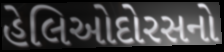
હેલિઓદોરસનો